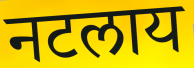
नटलाय